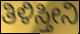
ತಿಳಿಸ್ತೀನಿ